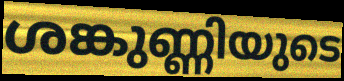
ശങ്കുണ്ണിയുടെ